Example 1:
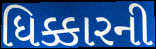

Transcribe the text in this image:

ધિક્કારની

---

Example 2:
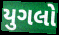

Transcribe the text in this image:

યુગલો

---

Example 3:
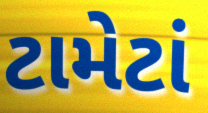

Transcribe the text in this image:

ટામેટાં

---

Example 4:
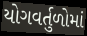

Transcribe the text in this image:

યોગવર્તુળોમાં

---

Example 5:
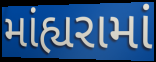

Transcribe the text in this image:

માંહ્યરામાં